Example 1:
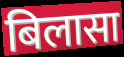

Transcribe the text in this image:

बिलासा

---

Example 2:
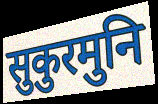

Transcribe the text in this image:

सुकुरमुनि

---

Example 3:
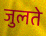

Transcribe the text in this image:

जुलते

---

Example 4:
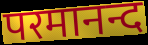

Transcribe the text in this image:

परमानन्‍द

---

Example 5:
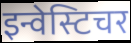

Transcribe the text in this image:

इन्वेस्टिचर